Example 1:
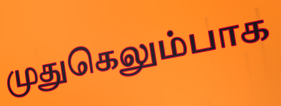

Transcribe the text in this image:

முதுகெலும்பாக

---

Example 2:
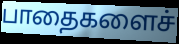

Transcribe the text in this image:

பாதைகளைச்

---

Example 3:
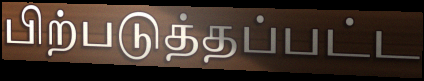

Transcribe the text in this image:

பிற்படுத்தப்பட்ட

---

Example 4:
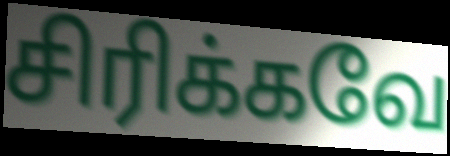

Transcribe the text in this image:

சிரிக்கவே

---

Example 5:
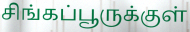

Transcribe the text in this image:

சிங்கப்பூருக்குள்